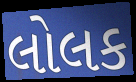
લોલક